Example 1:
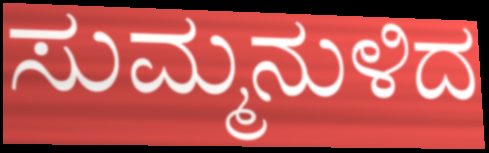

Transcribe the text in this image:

ಸುಮ್ಮನುಳಿದ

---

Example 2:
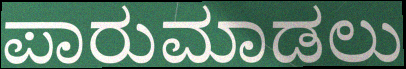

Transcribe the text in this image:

ಪಾರುಮಾಡಲು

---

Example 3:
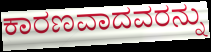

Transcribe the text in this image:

ಕಾರಣವಾದವರನ್ನು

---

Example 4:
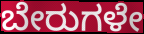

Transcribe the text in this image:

ಬೇರುಗಳೇ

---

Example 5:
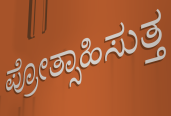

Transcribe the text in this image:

ಪ್ರೋತ್ಸಾಹಿಸುತ್ತ